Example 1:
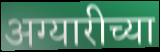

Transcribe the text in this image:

अग्यारीच्या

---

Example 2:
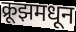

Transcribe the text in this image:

क्रूझमधून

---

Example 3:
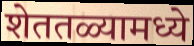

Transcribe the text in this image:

शेततळ्यामध्ये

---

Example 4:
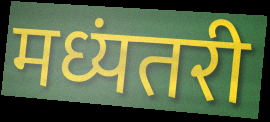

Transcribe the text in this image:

मध्यंतरी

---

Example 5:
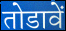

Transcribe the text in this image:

तोडावें